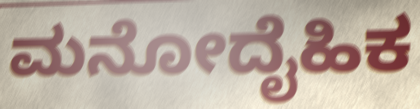
ಮನೋದೈಹಿಕ